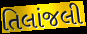
તિલાંજલી